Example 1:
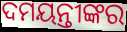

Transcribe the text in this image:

ଦମୟନ୍ତୀଙ୍କର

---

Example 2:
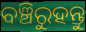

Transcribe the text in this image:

ବଞ୍ଚିରୁହନ୍ତୁ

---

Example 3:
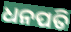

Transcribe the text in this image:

ଧନପତି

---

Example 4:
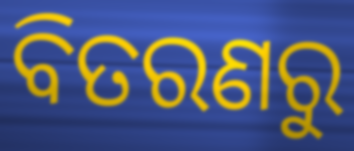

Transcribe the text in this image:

ବିତରଣରୁ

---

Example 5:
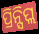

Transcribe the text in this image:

ପ୍ରିନ୍ସିପ୍ଲ